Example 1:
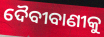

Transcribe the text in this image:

ଦୈବୀବାଣୀକୁ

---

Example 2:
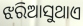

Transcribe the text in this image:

ଝରିଆସୁଥାଏ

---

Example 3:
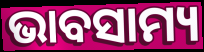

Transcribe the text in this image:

ଭାବସାମ୍ୟ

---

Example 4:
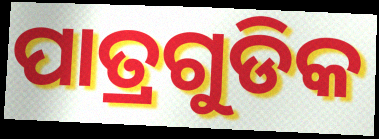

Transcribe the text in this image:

ପାତ୍ରଗୁଡିକ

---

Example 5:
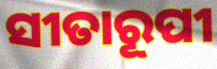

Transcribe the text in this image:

ସୀତାରୂପୀ